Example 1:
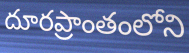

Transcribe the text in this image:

దూరప్రాంతంలోని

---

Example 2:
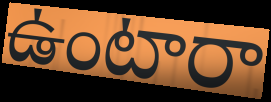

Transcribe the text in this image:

ఉంటారా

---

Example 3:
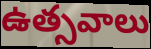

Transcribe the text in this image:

ఉత్సవాలు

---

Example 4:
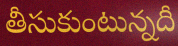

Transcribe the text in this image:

తీసుకుంటున్నదీ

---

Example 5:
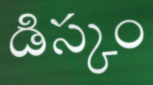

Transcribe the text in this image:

డిస్కం